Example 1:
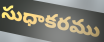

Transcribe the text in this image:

సుధాకరము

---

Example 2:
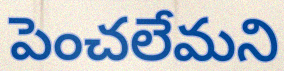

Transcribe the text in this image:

పెంచలేమని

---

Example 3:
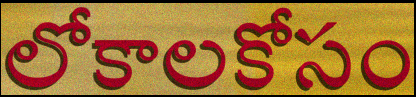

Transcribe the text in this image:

లోకాలకోసం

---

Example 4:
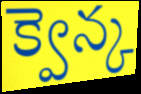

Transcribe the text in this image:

క్వెన్క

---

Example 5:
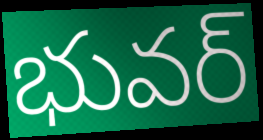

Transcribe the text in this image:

భువర్